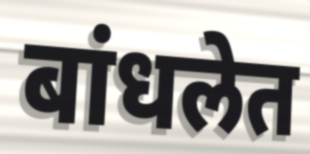
बांधलेत